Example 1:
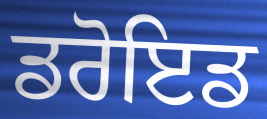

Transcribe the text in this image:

ਡਰੋਇਡ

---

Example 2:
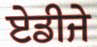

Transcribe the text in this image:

ਏਡੀਜੇ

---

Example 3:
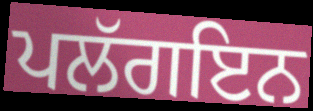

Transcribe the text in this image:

ਪਲੱਗਇਨ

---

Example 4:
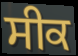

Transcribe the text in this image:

ਸੀਕ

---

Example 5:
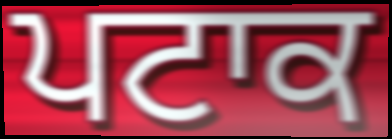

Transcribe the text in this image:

ਪਟਾਕ